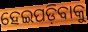
ହେଇପଡ଼ିବାକୁ